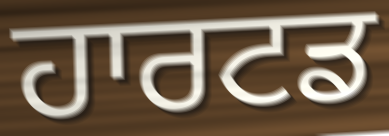
ਹਾਰਟਡ